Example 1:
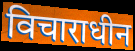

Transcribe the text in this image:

विचाराधीन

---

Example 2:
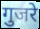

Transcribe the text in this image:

गुजरे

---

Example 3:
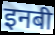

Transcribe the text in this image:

इनबी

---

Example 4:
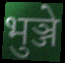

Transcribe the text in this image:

भुञ्जे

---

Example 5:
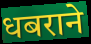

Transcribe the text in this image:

धबराने